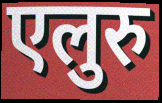
एलुरु